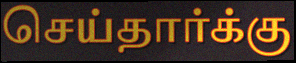
செய்தார்க்கு